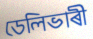
ডেলিভাৰী